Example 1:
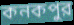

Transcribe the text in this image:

কনকপুর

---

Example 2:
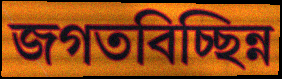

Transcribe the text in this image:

জগতবিচ্ছিন্ন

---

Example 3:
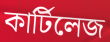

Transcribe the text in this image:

কার্টিলেজ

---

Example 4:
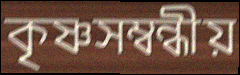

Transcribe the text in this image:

কৃষ্ণসম্বন্ধীয়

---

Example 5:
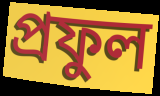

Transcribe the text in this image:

প্রফুল